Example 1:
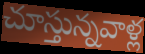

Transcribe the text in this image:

చూస్తున్నవాళ్ల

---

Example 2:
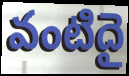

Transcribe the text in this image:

వంటిదై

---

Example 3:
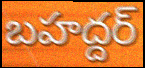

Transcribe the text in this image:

బహద్దర్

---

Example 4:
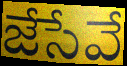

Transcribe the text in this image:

జేసేవే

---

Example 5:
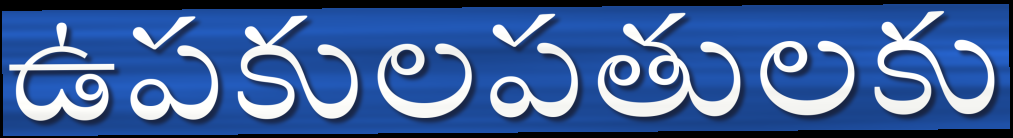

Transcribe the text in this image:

ఉపకులపతులకు